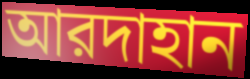
আরদাহান